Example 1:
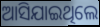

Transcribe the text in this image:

ଆସିଯାଇଥିଲେ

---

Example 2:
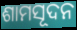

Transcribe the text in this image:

ଶାମସୂଦନ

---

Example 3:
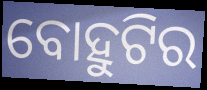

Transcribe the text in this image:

ବୋହୁଟିର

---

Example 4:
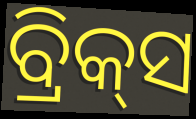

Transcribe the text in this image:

ବ୍ରିକ୍‌ସ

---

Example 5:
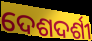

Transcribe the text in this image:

ଦେଶଦର୍ଶୀ